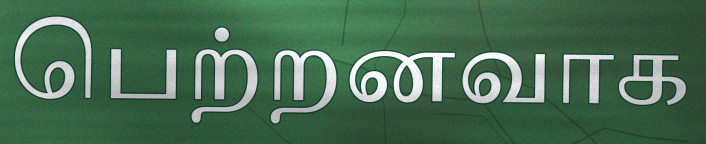
பெற்றனவாக